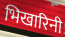
भिखारिनी